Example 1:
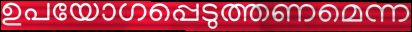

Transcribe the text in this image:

ഉപയോഗപ്പെടുത്തണമെന്ന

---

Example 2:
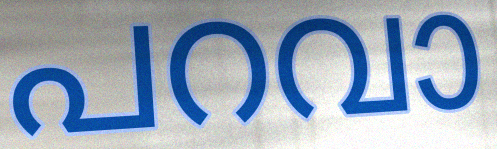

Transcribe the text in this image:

പറവാ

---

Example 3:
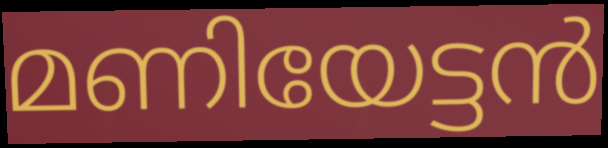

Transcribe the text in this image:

മണിയേട്ടൻ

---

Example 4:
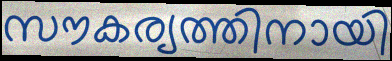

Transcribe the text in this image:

സൗകര്യത്തിനായി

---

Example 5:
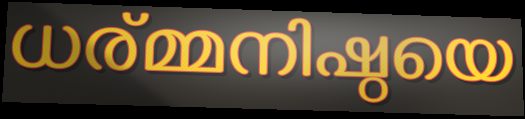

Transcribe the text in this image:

ധര്മ്മനിഷ്ഠയെ